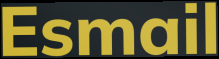
Esmail